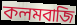
কলমবাজি